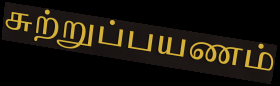
சுற்றுப்பயணம்